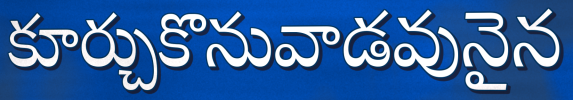
కూర్చుకొనువాడవునైన